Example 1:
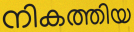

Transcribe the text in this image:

നികത്തിയ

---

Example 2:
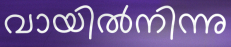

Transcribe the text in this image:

വായിൽനിന്നു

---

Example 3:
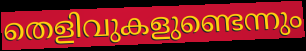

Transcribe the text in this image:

തെളിവുകളുണ്ടെന്നും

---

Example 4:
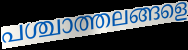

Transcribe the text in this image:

പശ്ചാത്തലങ്ങളെ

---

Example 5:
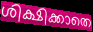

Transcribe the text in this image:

ശിക്ഷിക്കാതെ